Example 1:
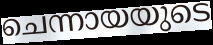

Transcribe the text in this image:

ചെന്നായയുടെ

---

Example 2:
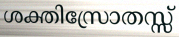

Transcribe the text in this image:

ശക്തിസ്രോതസ്സ്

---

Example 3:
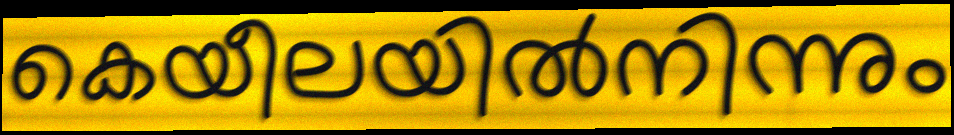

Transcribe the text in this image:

കെയീലയിൽനിന്നും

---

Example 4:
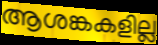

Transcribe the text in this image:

ആശങ്കകളില്ല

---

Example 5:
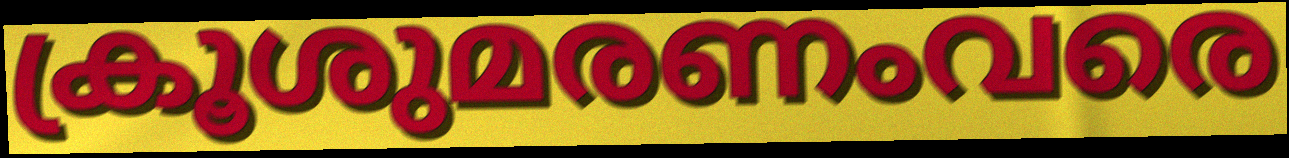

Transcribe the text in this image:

ക്രൂശുമരണംവരെ